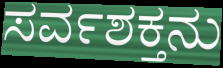
ಸರ್ವಶಕ್ತನು